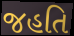
જહતિ